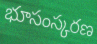
భూసంస్కరణ